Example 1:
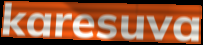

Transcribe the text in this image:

karesuva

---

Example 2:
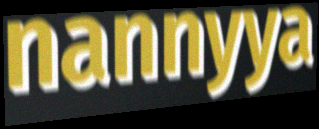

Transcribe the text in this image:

nannyya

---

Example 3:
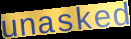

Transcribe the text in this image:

unasked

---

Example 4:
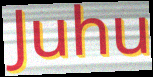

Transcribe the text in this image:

Juhu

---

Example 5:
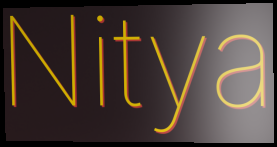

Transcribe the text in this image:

Nitya